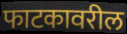
फाटकावरील